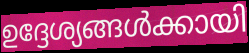
ഉദ്ദേശ്യങ്ങൾക്കായി